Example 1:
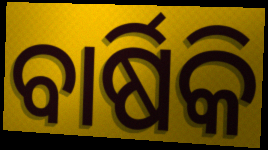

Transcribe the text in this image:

ବାର୍ଷିକି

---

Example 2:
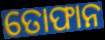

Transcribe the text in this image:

ତୋଫାନ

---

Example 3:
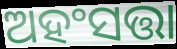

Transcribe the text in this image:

ଅହଂସତ୍ତା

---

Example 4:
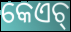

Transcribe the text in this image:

କେଏଚ୍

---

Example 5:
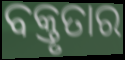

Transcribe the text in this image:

ବକ୍ତୃତାର